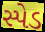
સ્પેડ